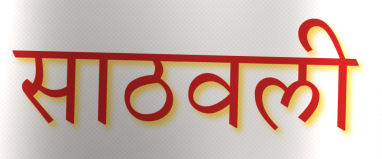
साठवली